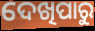
ଦେଖିପାରୁ